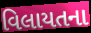
વિલાયતના